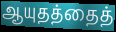
ஆயுதத்தைத்